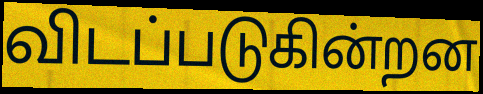
விடப்படுகின்றன